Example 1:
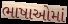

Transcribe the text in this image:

ભાષાઓમાં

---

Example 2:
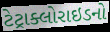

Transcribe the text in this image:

ટેટ્રાક્લોરાઇડનો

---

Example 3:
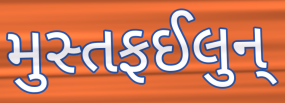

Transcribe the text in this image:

મુસ્તફઈલુન્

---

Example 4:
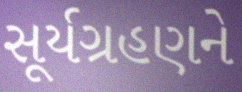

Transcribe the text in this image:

સૂર્યગ્રહણને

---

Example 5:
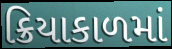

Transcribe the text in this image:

ક્રિયાકાળમાં